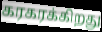
கரகரக்கிறது